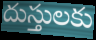
దుస్తులకు